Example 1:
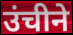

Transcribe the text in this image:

उंचीने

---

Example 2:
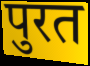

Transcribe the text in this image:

पुरत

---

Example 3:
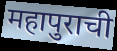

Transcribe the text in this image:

महापुराची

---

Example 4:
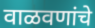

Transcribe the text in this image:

वाळवणांचे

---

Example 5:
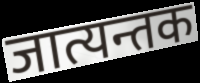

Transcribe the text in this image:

जात्यन्तक